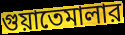
গুয়াতেমালার